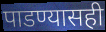
पाडण्यासही